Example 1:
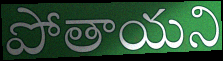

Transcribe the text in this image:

పోతాయని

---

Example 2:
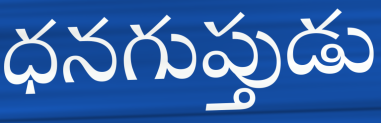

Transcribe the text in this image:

ధనగుప్తుడు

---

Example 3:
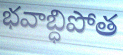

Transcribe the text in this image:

భవాబ్ధిపోత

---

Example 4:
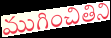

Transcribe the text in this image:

ముగించితిని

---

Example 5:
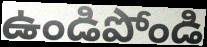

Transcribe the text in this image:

ఉండిపోండి